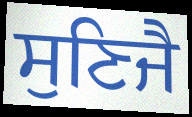
ਸੁਣਿਜੈ